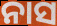
ନାସ